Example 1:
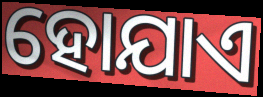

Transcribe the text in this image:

ହୋଯାଏ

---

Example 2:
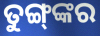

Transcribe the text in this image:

ତୁଙ୍ଗ୍‍ଙ୍କର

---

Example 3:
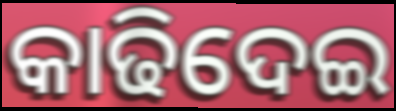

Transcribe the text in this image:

କାଢିଦେଇ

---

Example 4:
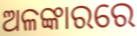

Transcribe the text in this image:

ଅଳଙ୍କାରରେ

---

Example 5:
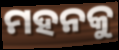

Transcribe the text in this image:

ମହନକୁ